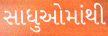
સાધુઓમાંથી